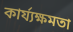
কাৰ্য্যক্ষমতা